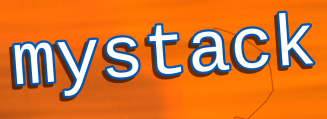
mystack